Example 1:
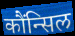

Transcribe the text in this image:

कौंन्सिल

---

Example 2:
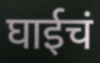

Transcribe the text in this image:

घाईचं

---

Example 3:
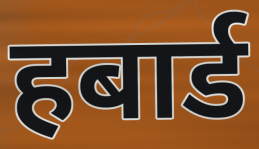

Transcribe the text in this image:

हबार्ड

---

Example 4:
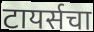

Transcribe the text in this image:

टायर्सचा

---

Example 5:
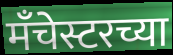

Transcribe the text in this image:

मँचेस्टरच्या